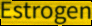
Estrogen